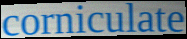
corniculate